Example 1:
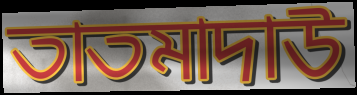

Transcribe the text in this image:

তাতমাদাউ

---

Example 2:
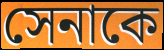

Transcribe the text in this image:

সেনাকে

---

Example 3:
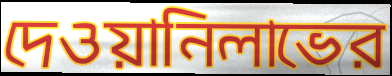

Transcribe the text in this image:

দেওয়ানিলাভের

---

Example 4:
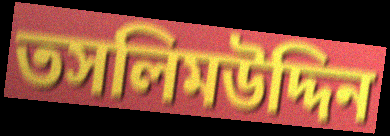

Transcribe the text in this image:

তসলিমউদ্দিন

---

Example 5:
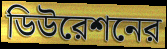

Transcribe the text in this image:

ডিউরেশনের